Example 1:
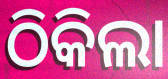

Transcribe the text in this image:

ଠିକିଲା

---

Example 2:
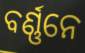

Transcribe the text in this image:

ବର୍ଣ୍ଣନେ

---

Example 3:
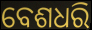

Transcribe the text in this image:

ବେଶଧରି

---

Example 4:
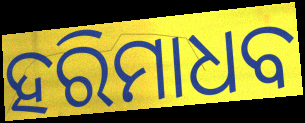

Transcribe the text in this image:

ହରିମାଧବ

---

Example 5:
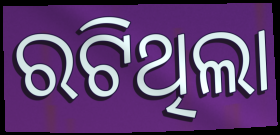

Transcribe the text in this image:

ରଟିଥିଲା